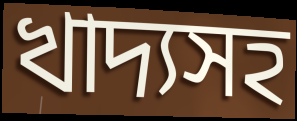
খাদ্যসহ